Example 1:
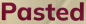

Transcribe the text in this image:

Pasted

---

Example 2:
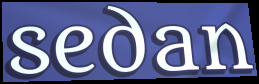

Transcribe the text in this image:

sedan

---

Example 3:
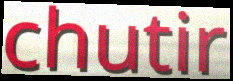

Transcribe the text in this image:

chutir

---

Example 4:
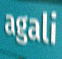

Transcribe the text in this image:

agali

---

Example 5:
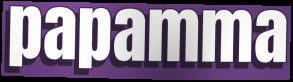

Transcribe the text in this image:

papamma